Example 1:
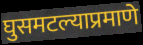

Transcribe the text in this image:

घुसमटल्याप्रमाणे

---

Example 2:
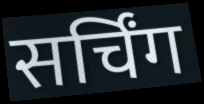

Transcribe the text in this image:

सर्चिंग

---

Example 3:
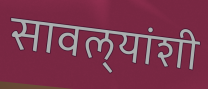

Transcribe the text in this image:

सावल्यांशी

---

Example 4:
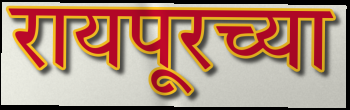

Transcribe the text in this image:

रायपूरच्या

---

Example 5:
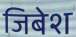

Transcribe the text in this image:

जिबेश